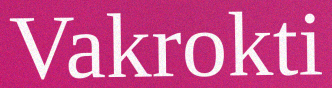
Vakrokti